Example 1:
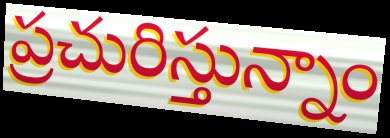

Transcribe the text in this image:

ప్రచురిస్తున్నాం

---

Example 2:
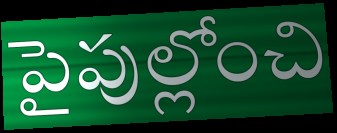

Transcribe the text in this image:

పైపుల్లోంచి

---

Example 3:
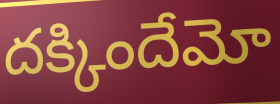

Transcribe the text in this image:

దక్కిందేమో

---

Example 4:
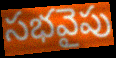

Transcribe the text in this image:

సభవైపు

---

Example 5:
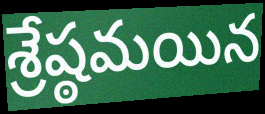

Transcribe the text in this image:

శ్రేష్ఠమయిన